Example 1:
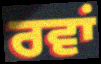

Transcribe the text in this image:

ਰਵਾਂ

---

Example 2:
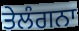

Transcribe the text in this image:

ਤੇਲੰਗਨਾ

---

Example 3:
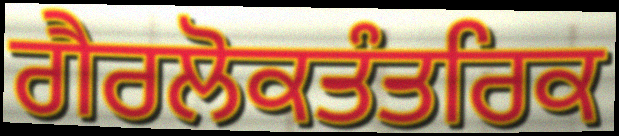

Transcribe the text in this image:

ਗੈਰਲੋਕਤੰਤਰਿਕ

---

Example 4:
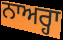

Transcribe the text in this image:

ਨਾਅਰ੍ਹਾ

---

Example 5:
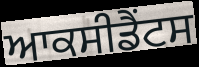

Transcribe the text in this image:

ਆਕਸੀਡੈਂਟਸ